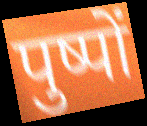
पुष्पों